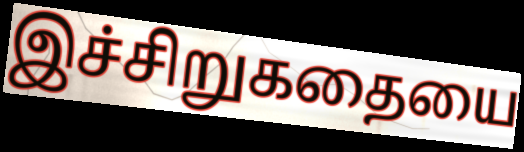
இச்சிறுகதையை